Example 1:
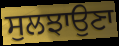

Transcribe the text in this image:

ਸੁਲਝਾਉਣਾ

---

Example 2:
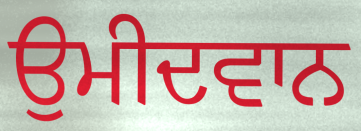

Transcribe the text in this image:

ਉਮੀਦਵਾਨ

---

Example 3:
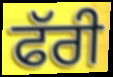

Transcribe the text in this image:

ਫੱਰੀ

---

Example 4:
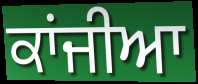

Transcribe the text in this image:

ਕਾਂਜੀਆ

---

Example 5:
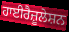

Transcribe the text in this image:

ਹਾਈਰੈਜ਼ੂਲੇਸ਼ਨ